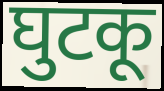
घुटकू